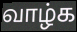
வாழ்க